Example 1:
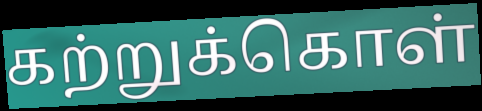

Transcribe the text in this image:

கற்றுக்கொள்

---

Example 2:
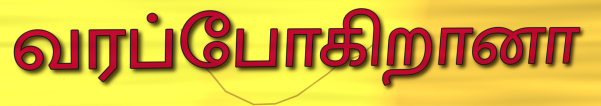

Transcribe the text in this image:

வரப்போகிறானா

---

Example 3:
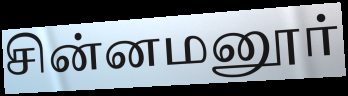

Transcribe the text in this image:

சின்னமனூர்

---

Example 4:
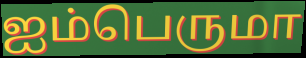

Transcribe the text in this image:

ஐம்பெருமா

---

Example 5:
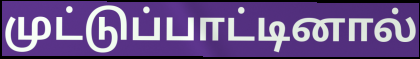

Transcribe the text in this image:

முட்டுப்பாட்டினால்